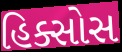
હિક્સોસ